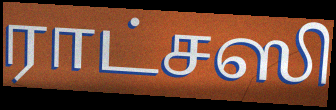
ராட்சஸி